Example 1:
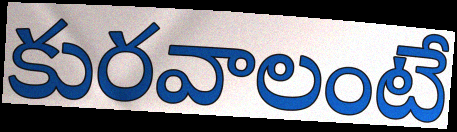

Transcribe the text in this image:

కురవాలంటే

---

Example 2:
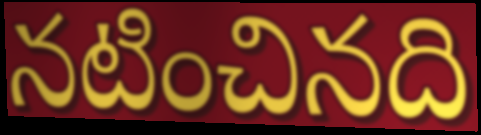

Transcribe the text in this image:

నటించినది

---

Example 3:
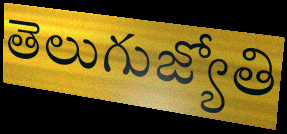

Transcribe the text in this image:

తెలుగుజ్యోతి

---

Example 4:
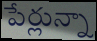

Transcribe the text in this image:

పేర్లున్నా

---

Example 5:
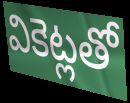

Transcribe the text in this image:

వికెట్లతో